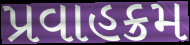
પ્રવાહક્રમ